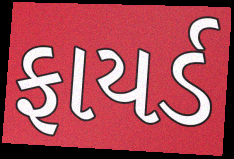
ફાયર્ડ